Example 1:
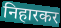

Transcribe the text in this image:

निहारकर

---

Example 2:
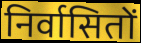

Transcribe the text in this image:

निर्वासितों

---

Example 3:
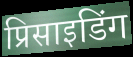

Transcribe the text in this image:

प्रिसाइडिंग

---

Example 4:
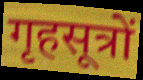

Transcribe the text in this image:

गृहसूत्रों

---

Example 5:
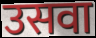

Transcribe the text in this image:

उसवा